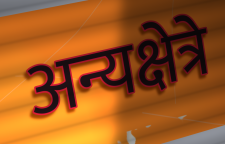
अन्यक्षेत्रे